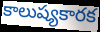
కాలుష్యకారక